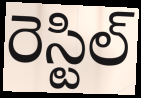
రెస్టిల్